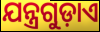
ଯନ୍ତ୍ରଗୁଡ଼ାଏ